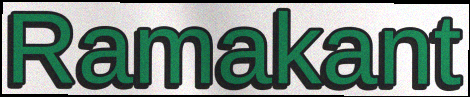
Ramakant